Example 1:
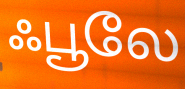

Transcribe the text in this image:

ஃபூலே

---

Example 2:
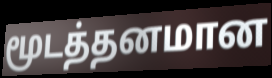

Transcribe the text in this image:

மூடத்தனமான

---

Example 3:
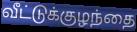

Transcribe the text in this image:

வீட்டுக்குழந்தை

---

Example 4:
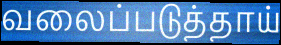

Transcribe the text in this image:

வலைப்படுத்தாய்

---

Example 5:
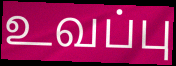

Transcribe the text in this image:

உவப்பு